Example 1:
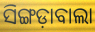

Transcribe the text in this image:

ସିଙ୍ଗଡ଼ାବାଲା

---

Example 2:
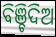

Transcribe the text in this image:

ବିଞ୍ଚିଦିଅ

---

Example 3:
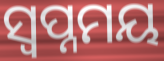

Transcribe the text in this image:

ସ୍ଵପ୍ନମୟ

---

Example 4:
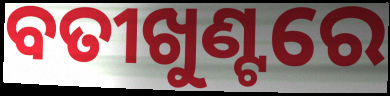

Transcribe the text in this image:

ବତୀଖୁଣ୍ଟରେ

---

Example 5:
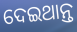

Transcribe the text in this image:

ଦେଇଥାନ୍ତ